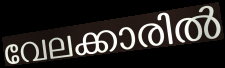
വേലക്കാരിൽ